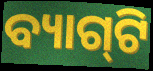
ବ୍ୟାଗ୍‌ଟି